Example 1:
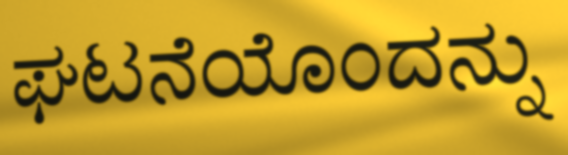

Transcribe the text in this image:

ಘಟನೆಯೊಂದನ್ನು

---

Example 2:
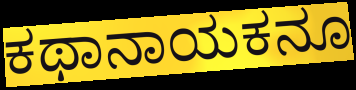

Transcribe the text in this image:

ಕಥಾನಾಯಕನೂ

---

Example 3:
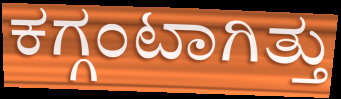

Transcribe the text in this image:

ಕಗ್ಗಂಟಾಗಿತ್ತು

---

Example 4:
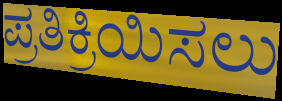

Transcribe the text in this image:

ಪ್ರತಿಕ್ರಿಯಿಸಲು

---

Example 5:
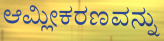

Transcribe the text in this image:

ಆಮ್ಲೀಕರಣವನ್ನು